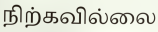
நிற்கவில்லை